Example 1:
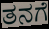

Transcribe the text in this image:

ತನಗೆ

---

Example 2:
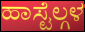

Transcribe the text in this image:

ಹಾಸ್ಟೆಲ್ಗಳ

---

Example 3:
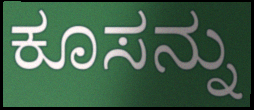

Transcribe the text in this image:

ಕೂಸನ್ನು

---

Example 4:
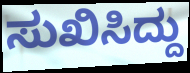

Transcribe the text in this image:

ಸುಖಿಸಿದ್ದು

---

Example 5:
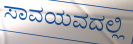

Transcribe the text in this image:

ಸಾವಯವದಲ್ಲಿ